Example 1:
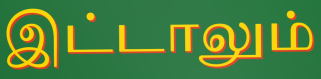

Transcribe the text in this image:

இட்டாலும்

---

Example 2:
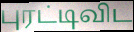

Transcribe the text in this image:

புரட்டிவிட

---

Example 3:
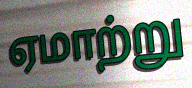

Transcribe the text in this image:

ஏமாற்று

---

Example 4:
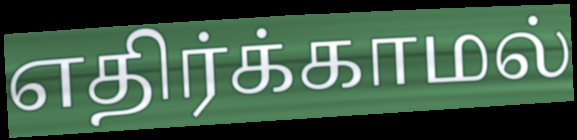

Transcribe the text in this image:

எதிர்க்காமல்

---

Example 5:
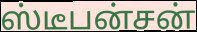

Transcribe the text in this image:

ஸ்டீபன்சன்